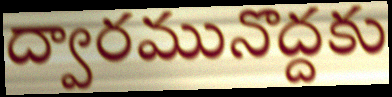
ద్వారమునొద్దకు